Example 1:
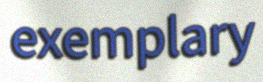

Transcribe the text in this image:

exemplary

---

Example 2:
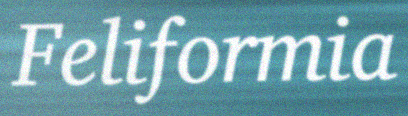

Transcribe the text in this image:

Feliformia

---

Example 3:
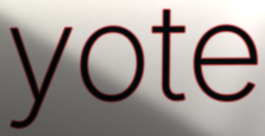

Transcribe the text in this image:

yote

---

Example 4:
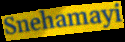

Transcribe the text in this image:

Snehamayi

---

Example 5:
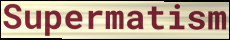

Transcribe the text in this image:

Supermatism